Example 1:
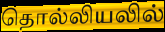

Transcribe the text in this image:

தொல்லியலில்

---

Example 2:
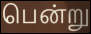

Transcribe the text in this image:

பென்று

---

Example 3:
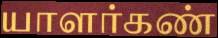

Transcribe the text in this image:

யாளர்கண்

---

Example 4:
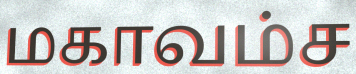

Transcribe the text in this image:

மகாவம்ச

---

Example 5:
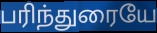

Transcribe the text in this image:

பரிந்துரையே